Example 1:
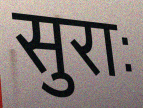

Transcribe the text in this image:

सुराः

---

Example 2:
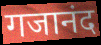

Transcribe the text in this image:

गजानंद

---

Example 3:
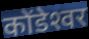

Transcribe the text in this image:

कोंडेश्वर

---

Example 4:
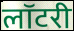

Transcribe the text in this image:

लॉटरी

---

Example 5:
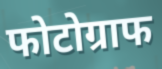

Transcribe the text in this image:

फोटोग्राफ